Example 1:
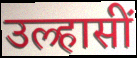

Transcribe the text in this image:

उल्हासीं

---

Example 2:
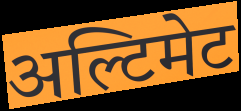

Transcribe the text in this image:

अल्टिमेट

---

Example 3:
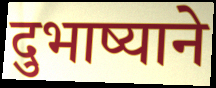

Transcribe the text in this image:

दुभाष्याने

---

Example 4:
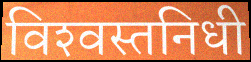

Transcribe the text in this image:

विश्वस्तनिधी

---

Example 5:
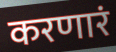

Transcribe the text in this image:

करणारं